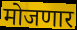
मोजणार